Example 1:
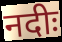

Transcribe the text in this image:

नदीः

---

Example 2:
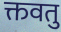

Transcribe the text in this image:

क्तवतु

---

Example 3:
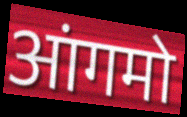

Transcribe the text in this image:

आंगमो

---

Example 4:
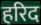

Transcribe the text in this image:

हरिद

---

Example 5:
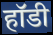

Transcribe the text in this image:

हॉडी